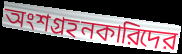
অংশগ্রহনকারিদের